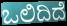
ಒಲಿದಿದೆ